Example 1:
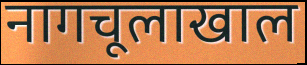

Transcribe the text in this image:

नागचूलाखाल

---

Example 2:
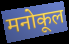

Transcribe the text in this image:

मनोकूल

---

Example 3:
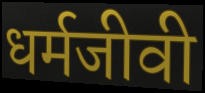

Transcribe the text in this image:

धर्मजीवी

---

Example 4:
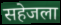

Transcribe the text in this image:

सहेजला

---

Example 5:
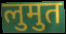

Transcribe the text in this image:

लुमुत